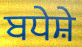
ਬਧੇਸ਼ੇ